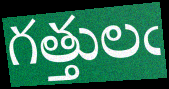
గత్తులఁ